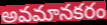
అవమానకరం